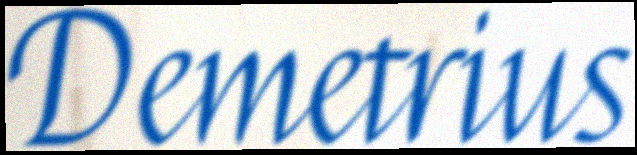
Demetrius